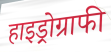
हाइड्रोग्राफी